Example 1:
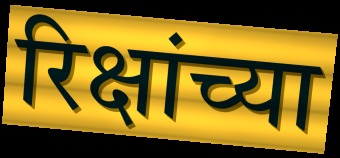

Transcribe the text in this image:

रिक्षांच्या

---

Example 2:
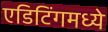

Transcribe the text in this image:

एडिटिंगमध्ये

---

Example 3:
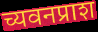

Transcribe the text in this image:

च्यवनप्राश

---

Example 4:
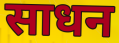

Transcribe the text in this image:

साधन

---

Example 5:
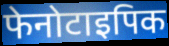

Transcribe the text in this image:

फेनोटाइपिक